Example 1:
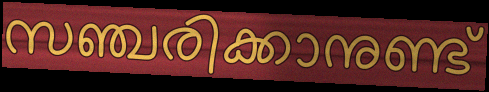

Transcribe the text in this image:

സഞ്ചരിക്കാനുണ്ട്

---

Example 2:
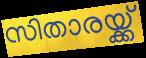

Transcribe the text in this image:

സിതാരയ്ക്ക്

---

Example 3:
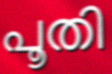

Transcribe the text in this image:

പൂതി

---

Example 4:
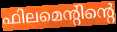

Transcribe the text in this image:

ഫിലമെന്റിന്റെ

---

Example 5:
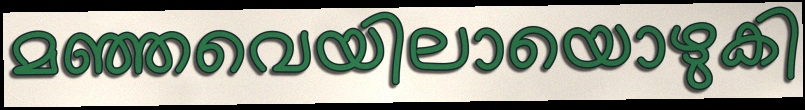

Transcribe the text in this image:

മഞ്ഞവെയിലായൊഴുകി